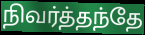
நிவர்த்தந்தே